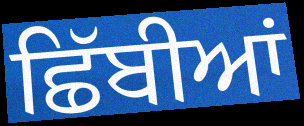
ਛਿੱਬੀਆਂ